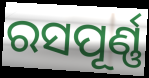
ରସପୂର୍ଣ୍ଣ